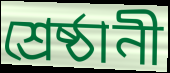
শ্রেষ্ঠানী